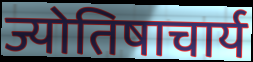
ज्योतिषाचार्य